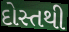
દોસ્તથી